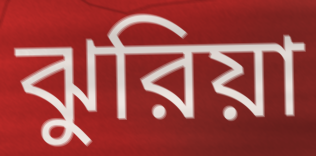
ঝুরিয়া